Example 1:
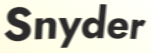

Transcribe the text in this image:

Snyder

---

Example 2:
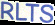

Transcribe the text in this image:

RLTS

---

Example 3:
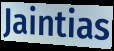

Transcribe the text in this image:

Jaintias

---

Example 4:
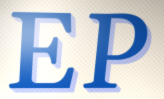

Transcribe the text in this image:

EP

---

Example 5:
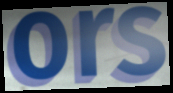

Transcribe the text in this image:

ors